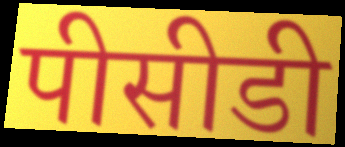
पीसीडी